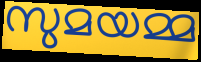
സുമയമ്മ